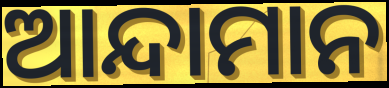
ଆନ୍ଦାମାନ